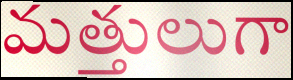
మత్తులుగా